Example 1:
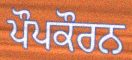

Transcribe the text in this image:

ਪੌਪਕੌਰਨ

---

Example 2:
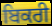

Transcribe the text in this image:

ਬਿਕਰੀ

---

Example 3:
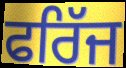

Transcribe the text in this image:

ਫਰਿੱਜ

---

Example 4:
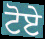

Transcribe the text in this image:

ਟੋਏ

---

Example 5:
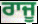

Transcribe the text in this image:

ਰਾਜੂ